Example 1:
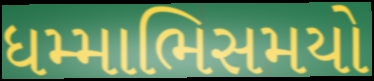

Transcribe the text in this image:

ધમ્માભિસમયો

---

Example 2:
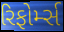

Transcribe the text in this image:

રિફોર્મ્સ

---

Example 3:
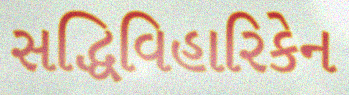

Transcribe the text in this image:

સદ્ધિવિહારિકેન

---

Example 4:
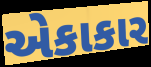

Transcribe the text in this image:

એકાકાર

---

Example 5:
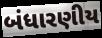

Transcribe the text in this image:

બંધારણીય